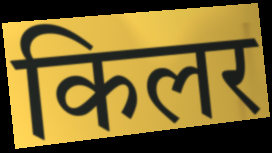
किलर